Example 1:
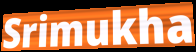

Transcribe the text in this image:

Srimukha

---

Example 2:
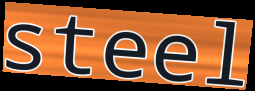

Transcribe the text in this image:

steel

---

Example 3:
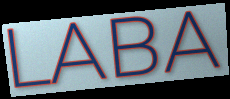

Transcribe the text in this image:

LABA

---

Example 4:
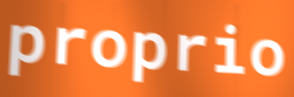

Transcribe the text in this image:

proprio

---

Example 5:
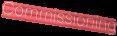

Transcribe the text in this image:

Commissioning